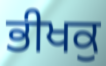
ਭੀਖਕੁ